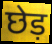
छेड़